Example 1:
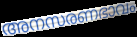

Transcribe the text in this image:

അനസരണഭാവം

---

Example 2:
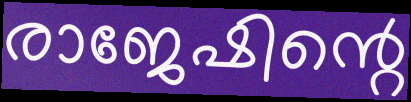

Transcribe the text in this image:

രാജേഷിന്റെ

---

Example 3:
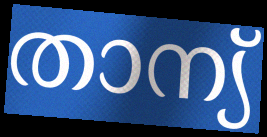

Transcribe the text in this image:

താന്യ്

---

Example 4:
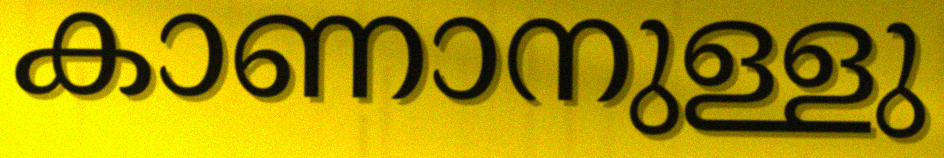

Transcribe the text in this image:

കാണാനുള്ളു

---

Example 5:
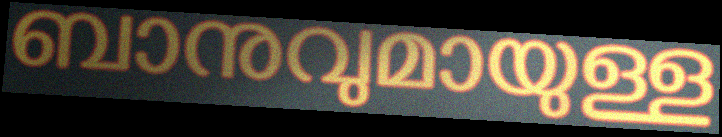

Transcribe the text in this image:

ബാനുവുമായുള്ള